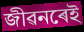
জীৱনৰেই